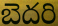
బెదరి